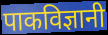
पाकविज्ञानी